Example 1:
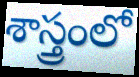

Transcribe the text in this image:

శాస్త్రంలో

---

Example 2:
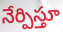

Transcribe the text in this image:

నేర్పిస్తూ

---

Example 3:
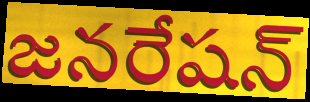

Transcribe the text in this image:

జనరేషన్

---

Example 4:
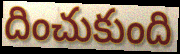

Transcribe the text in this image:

దించుకుంది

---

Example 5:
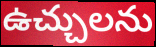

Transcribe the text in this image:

ఉచ్చులను